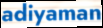
adiyaman